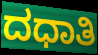
ದಧಾತಿ